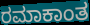
ರಮಾಕಾಂತ